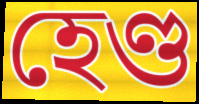
হেণ্ড